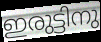
ഇരുട്ടിനു